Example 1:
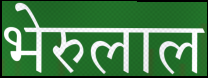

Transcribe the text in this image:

भेरुलाल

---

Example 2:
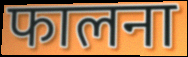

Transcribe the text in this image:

फालना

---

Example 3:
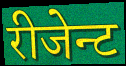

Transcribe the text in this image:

रीजेन्ट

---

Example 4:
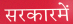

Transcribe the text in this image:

सरकारमें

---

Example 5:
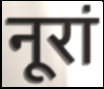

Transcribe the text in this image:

नूरां